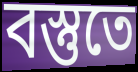
বস্তুতে